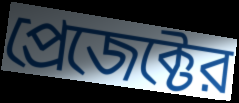
প্রেজেক্টের